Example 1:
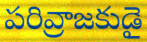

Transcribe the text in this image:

పరివ్రాజకుడై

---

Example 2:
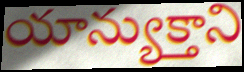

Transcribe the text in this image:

యాన్యుక్తాని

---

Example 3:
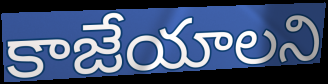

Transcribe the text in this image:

కాజేయాలని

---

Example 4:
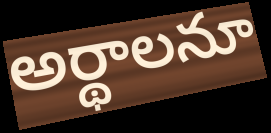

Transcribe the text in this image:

అర్థాలనూ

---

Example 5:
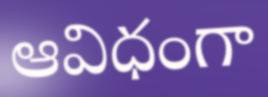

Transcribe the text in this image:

ఆవిధంగా